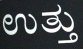
ಉತ್ತು